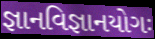
જ્ઞાનવિજ્ઞાનયોગઃ